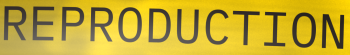
REPRODUCTION